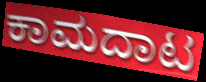
ಕಾಮದಾಟ